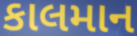
કાલમાન